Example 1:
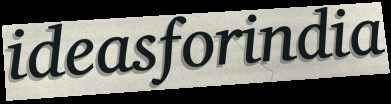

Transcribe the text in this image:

ideasforindia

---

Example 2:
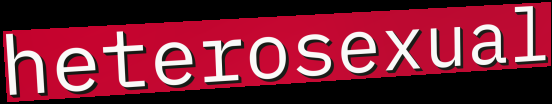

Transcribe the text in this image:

heterosexual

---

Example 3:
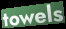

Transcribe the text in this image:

towels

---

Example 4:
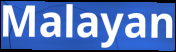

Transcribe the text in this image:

Malayan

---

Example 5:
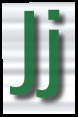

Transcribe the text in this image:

Jj